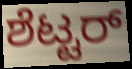
ಶೆಟ್ಟರ್